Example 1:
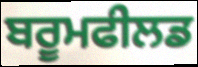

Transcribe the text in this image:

ਬਰੂਮਫੀਲਡ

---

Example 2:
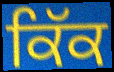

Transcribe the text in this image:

ਕਿੱਕ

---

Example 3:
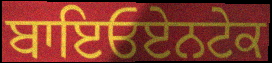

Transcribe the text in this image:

ਬਾਇਓਏਨਟੇਕ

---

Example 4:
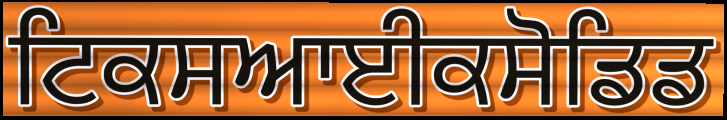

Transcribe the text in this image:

ਟਿਕਸਆਈਕਸੋਡਿਡ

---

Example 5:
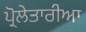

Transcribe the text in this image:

ਪ੍ਰੋਲੇਤਾਰੀਆ